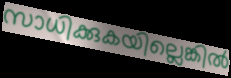
സാധിക്കുകയില്ലെങ്കിൽ